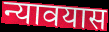
न्यावयास